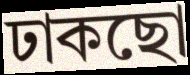
ঢাকছো